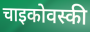
चाइकोवस्की